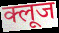
क्लूज